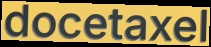
docetaxel